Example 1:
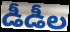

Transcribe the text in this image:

డీడీల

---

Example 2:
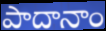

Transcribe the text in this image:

పాదానాం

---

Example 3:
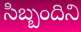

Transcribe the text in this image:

సిబ్బందిని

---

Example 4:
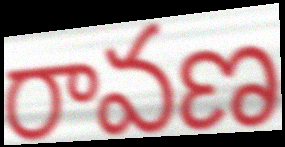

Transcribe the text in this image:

రావణ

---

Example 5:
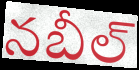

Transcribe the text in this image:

నబీల్